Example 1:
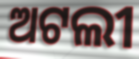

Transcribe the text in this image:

ଅଟଲୀ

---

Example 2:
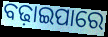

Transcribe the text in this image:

ବଢ଼ାଇପାରେ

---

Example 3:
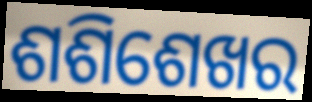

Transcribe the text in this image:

ଶଶିଶେଖର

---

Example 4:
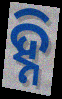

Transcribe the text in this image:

ହ୍ନି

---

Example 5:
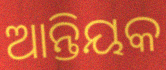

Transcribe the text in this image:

ଆନ୍ତିୟକ